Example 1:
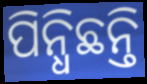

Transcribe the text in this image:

ପିନ୍ଧିଛନ୍ତି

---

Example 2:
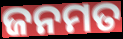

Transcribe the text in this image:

ଜନମତ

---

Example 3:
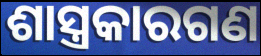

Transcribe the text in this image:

ଶାସ୍ତ୍ରକାରଗଣ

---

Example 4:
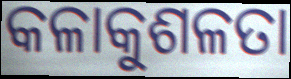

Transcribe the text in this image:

କଳାକୁଶଳତା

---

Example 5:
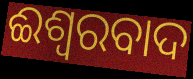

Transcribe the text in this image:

ଈଶ୍ୱରବାଦ